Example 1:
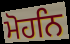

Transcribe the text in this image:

ਮੋਹਨਿ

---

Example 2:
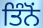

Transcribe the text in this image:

ਤਿੰਨੋਂ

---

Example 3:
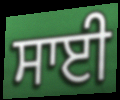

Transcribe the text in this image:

ਸਾਈ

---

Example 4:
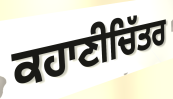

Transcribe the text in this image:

ਕਹਾਣੀਚਿੱਤਰ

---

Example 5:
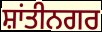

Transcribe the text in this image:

ਸ਼ਾਂਤੀਨਗਰ